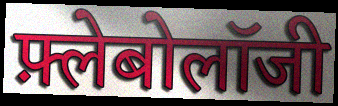
फ़्लेबोलॉजी